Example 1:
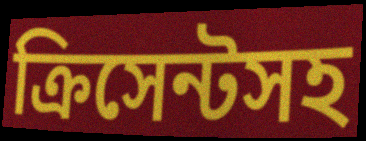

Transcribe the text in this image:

ক্রিসেন্টসহ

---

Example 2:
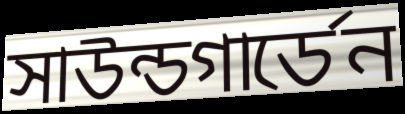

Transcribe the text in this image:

সাউন্ডগার্ডেন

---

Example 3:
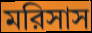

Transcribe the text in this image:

মরিসাস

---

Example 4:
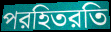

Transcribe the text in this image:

পরহিতরতি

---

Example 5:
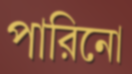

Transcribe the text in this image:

পারিনো